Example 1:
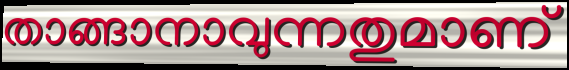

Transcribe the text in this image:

താങ്ങാനാവുന്നതുമാണ്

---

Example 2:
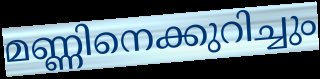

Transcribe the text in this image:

മണ്ണിനെക്കുറിച്ചും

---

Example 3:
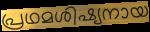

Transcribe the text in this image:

പ്രഥമശിഷ്യനായ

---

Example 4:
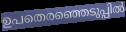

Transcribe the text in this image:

ഉപതെരഞ്ഞെടുപ്പിൽ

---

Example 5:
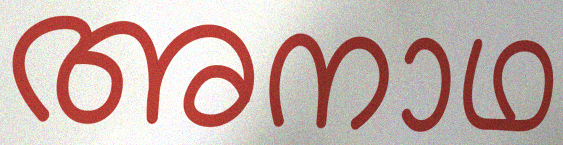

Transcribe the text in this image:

അനാഥ